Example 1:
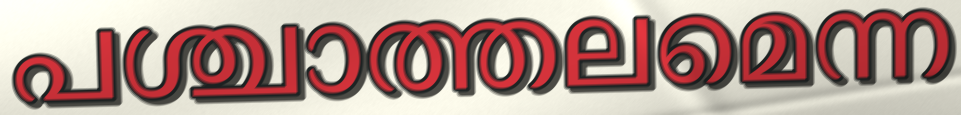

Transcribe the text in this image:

പശ്ചാത്തലമെന്ന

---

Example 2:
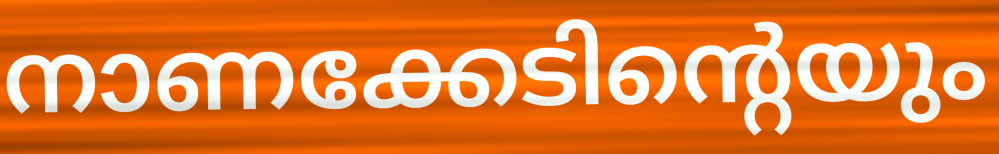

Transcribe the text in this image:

നാണക്കേടിന്റെയും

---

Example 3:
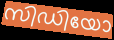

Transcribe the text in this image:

സിഡിയോ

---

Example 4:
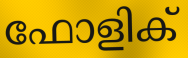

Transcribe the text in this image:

ഫോളിക്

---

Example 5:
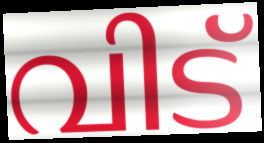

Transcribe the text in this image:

വിട്